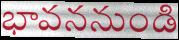
భావననుండి